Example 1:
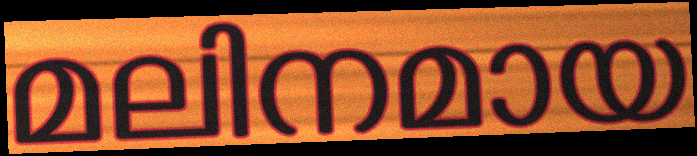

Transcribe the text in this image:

മലിനമായ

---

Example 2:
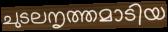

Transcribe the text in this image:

ചുടലനൃത്തമാടിയ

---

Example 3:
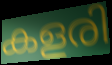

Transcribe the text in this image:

കളരി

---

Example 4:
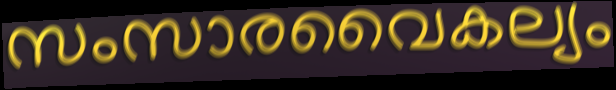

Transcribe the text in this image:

സംസാരവൈകല്യം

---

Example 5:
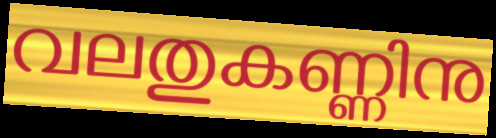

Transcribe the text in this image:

വലതുകണ്ണിനു